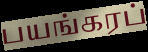
பயங்கரப்